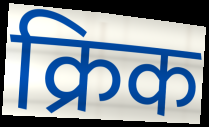
क्रिक